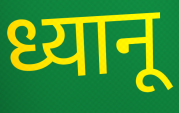
ध्यानू